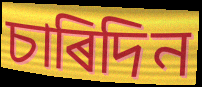
চাৰিদিন